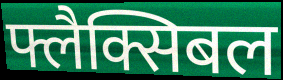
फ्लैक्सिबल